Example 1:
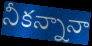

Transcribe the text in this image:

నీకన్నానా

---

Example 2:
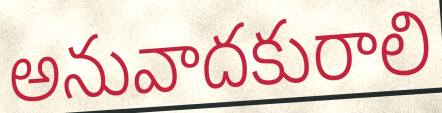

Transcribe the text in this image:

అనువాదకురాలి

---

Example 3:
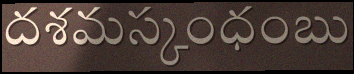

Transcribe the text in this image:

దశమస్కంధంబు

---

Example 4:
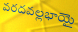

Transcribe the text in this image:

వరదవల్లభాయై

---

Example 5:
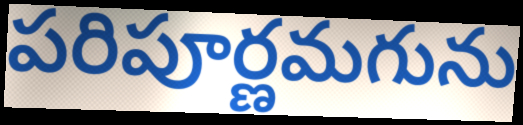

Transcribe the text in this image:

పరిపూర్ణమగును